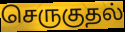
செருகுதல்